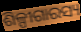
ଶିଳ୍ପୀଗାରସ୍ୟ